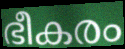
ഭീകരം